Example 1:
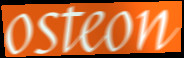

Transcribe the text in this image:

osteon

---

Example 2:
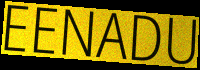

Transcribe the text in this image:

EENADU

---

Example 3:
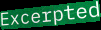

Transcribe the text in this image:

Excerpted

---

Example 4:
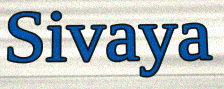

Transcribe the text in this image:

Sivaya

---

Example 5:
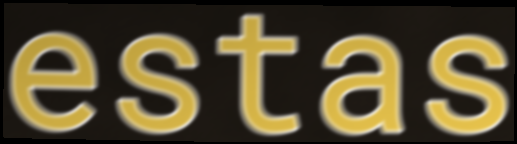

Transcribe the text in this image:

estas